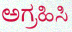
ಅಗ್ರಹಿಸಿ